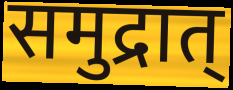
समुद्रात्